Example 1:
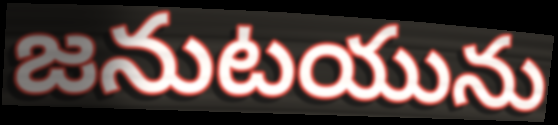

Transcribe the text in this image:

జనుటయును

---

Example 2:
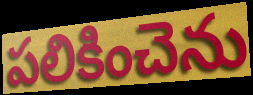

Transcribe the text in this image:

పలికించెను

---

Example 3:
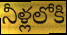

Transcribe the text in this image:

నీళ్లలోకి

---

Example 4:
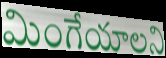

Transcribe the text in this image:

మింగేయాలని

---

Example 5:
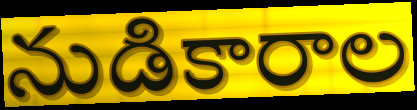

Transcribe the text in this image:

నుడికారాల